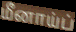
மீனாய்ப்